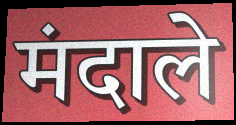
मंदाले